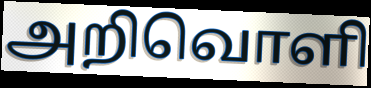
அறிவொளி